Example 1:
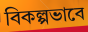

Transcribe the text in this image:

বিকল্পভাবে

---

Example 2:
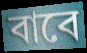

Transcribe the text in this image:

বাবে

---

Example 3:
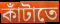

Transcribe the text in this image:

কাঁটাতে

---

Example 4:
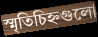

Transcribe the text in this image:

স্মৃতিচিহ্নগুলো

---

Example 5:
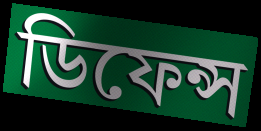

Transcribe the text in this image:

ডিফেন্স